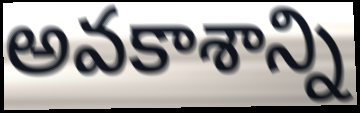
అవకాశాన్ని